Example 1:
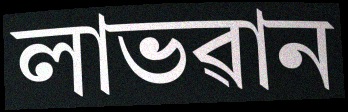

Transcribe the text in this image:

লাভৱান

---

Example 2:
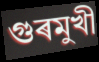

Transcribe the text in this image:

গুৰমুখী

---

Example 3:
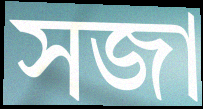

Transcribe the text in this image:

সজা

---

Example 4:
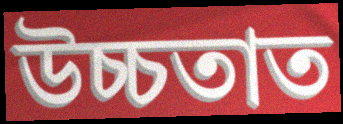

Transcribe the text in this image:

উচ্চতাত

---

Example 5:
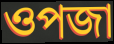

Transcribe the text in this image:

ওপজা